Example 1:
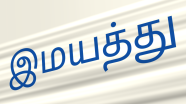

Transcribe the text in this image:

இமயத்து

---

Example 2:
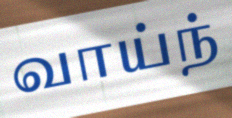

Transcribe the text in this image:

வாய்ந்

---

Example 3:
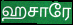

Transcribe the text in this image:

ஹசாரே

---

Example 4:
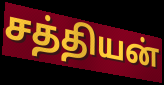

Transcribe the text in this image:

சத்தியன்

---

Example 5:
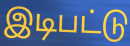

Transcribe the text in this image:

இடிபட்டு